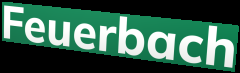
Feuerbach